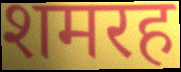
शमरह